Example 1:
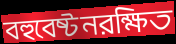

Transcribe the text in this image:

বহুবেষ্টনরক্ষিত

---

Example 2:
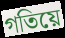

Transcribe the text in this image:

গতিয়ে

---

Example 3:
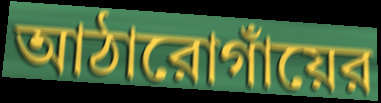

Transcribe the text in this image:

আঠারোগাঁয়ের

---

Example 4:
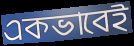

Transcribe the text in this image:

একভাবেই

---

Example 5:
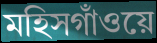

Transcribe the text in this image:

মহিসগাঁওয়ে